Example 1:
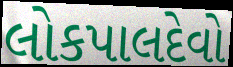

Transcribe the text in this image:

લોકપાલદેવો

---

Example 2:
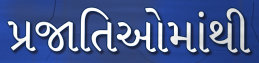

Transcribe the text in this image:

પ્રજાતિઓમાંથી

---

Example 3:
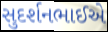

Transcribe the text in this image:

સુદર્શનભાઈએ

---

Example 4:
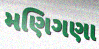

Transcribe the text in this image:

મણિગણા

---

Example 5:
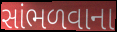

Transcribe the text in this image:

સાંભળવાના